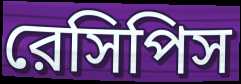
রেসিপিস